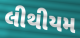
લીથીયમ